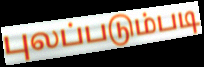
புலப்படும்படி